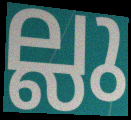
ല്ലു